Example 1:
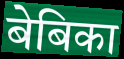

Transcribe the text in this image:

बेबिका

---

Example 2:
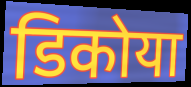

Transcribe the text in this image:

डिकोया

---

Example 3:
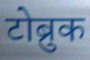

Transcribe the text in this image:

टोब्रुक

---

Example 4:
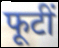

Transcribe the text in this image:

फूटीं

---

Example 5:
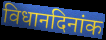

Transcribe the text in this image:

विधानदिनांक